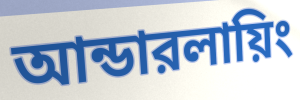
আন্ডারলায়িং